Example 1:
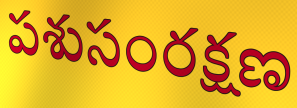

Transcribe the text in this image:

పశుసంరక్షణ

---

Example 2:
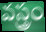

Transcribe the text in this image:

వస్త్రం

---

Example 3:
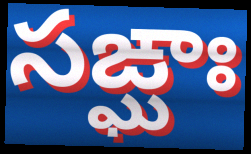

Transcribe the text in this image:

సఙ్ఘాః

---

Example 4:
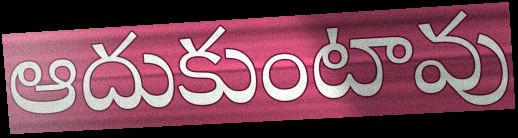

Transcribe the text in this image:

ఆదుకుంటావు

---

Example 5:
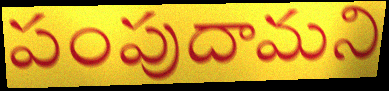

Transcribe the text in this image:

పంపుదామని